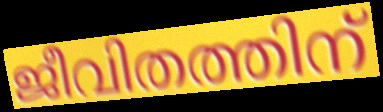
ജീവിതത്തിന്